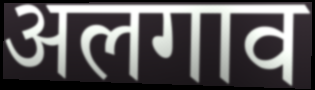
अलगाव